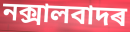
নক্সালবাদৰ